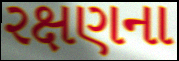
રક્ષણના